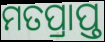
ମତପ୍ରାପ୍ତ